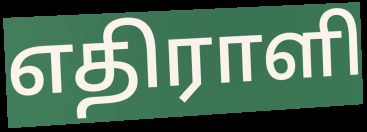
எதிராளி